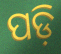
ପଡ଼ି